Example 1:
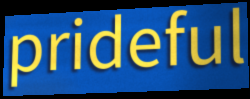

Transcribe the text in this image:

prideful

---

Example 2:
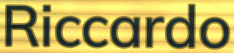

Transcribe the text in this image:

Riccardo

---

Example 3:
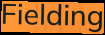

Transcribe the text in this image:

Fielding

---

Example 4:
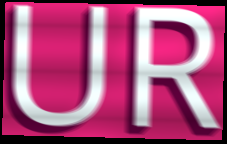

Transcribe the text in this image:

UR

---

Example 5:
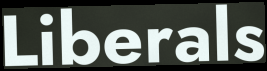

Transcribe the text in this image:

Liberals